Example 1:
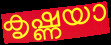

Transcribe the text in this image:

കൃഷ്ണയാ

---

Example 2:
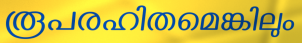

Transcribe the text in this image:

രൂപരഹിതമെങ്കിലും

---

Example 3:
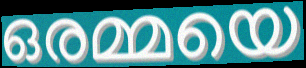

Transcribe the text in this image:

ഒരമ്മയെ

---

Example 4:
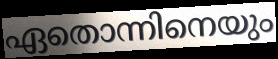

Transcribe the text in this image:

ഏതൊന്നിനെയും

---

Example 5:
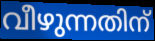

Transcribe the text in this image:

വീഴുന്നതിന്